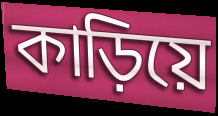
কাড়িয়ে